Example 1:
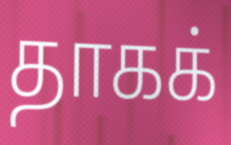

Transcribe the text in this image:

தாகக்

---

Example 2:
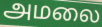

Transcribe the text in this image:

அமலை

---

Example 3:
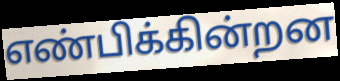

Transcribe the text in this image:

எண்பிக்கின்றன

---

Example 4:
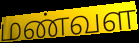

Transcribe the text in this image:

மண்வள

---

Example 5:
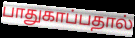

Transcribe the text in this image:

பாதுகாப்பதால்